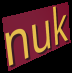
nuk